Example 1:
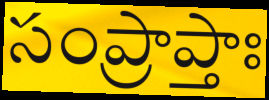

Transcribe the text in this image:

సంప్రాప్తాః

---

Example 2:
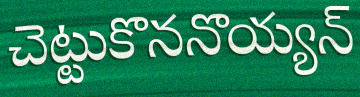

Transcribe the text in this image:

చెట్టుకొననొయ్యన్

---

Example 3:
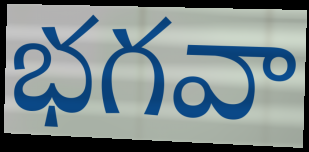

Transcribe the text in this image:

భగవా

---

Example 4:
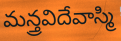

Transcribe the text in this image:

మన్త్రవిదేవాస్మి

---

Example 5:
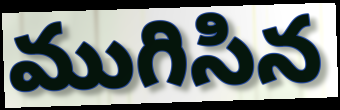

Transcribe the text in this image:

ముగిసిన